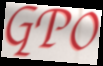
GPO